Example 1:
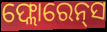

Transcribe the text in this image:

ଫ୍ଲୋରେନ୍‌ସ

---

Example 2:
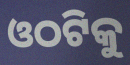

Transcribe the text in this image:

ଓଠଟିକୁ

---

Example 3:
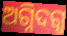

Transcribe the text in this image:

ଅଗ୍ନିଦଗ୍ଧ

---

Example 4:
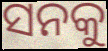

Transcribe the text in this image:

ସନକୁ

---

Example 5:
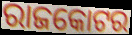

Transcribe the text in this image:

ରାଜକୋଟର